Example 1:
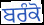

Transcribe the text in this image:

ਬਰੰਕੋ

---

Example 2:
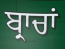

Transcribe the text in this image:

ਬ੍ਰਾਚਾਂ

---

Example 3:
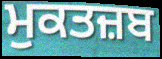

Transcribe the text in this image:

ਮੁਕਤਜ਼ਬ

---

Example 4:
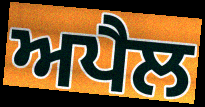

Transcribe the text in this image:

ਅਪੈਲ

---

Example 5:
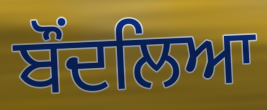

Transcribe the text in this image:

ਬੌਂਦਲਿਆ